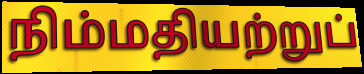
நிம்மதியற்றுப்